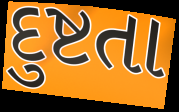
દુષ્ટતા